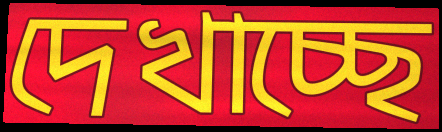
দেখাচ্ছে